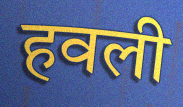
हवली